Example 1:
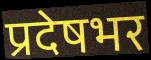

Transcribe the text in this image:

प्रदेषभर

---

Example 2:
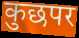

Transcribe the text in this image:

कुछपर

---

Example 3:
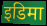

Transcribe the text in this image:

इडिमा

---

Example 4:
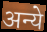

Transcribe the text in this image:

अन्ये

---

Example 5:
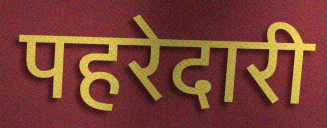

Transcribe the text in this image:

पहरेदारी